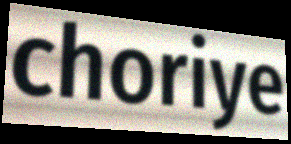
choriye